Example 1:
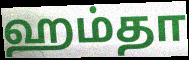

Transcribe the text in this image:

ஹம்தா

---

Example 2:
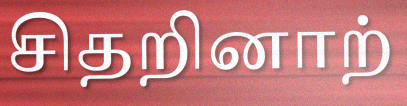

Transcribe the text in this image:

சிதறினாற்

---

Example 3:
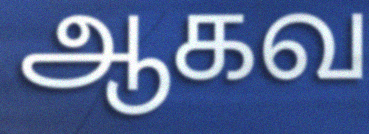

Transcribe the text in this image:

ஆகவ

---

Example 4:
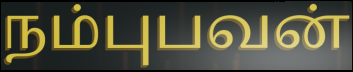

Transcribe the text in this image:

நம்புபவன்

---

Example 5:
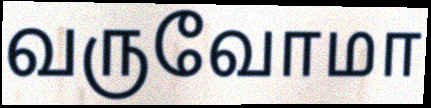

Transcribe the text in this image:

வருவோமா